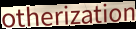
otherization